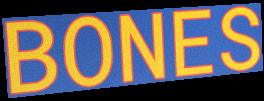
BONES